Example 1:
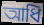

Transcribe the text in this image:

আধি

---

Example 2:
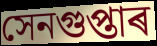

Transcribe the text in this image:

সেনগুপ্তাৰ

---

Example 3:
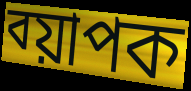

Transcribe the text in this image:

ব্য়াপক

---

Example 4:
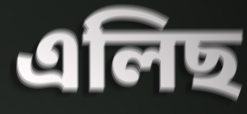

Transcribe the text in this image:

এলিছ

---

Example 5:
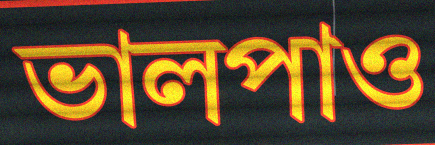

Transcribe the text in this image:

ভালপাও